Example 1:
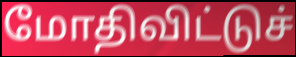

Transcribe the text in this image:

மோதிவிட்டுச்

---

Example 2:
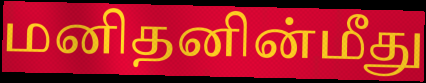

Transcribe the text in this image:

மனிதனின்மீது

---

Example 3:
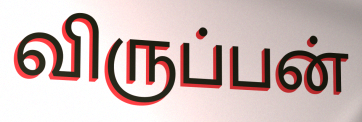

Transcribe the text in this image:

விருப்பன்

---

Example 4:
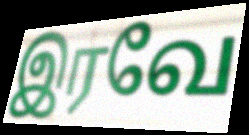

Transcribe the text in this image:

இரவே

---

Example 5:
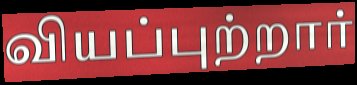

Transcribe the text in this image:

வியப்புற்றார்